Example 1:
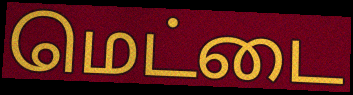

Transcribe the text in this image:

மெட்டை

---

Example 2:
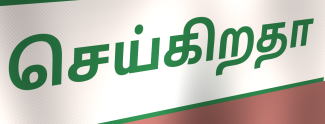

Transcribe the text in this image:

செய்கிறதா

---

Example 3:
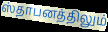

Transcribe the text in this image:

ஸ்தாபனத்திலும்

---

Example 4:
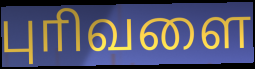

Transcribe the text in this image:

புரிவளை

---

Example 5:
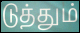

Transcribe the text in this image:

டுத்தும்